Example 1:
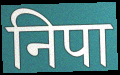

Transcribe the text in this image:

निपा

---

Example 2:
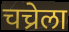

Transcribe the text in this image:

चच्रेला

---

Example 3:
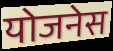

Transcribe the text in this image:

योजनेस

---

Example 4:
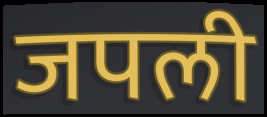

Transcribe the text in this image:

जपली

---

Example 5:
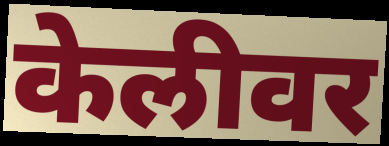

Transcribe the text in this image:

केलीवर